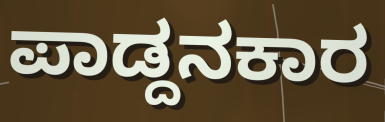
ಪಾಡ್ದನಕಾರ